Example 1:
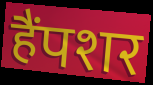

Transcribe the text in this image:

हैंपशर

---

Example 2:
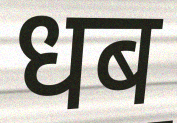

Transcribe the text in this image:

धब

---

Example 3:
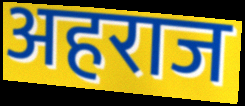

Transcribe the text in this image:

अहराज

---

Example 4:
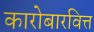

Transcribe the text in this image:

कारोबारवित्त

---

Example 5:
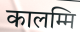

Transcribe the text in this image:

कालम्मि